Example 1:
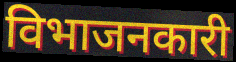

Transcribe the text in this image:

विभाजनकारी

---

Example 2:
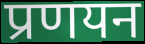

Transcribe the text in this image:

प्रणयन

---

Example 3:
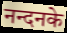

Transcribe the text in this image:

नन्दनके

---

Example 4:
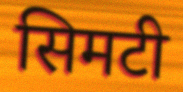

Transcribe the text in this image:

सिमटी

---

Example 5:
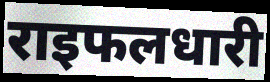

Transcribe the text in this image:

राइफलधारी